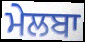
ਮੇਲਬਾ